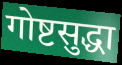
गोष्टसुद्धा